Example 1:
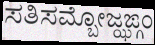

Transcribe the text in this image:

ಸತಿಸಮ್ಬೋಜ್ಝಙ್ಗಂ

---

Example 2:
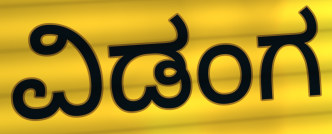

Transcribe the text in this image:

ವಿಡಂಗ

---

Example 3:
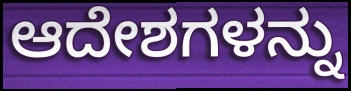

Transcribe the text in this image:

ಆದೇಶಗಳನ್ನು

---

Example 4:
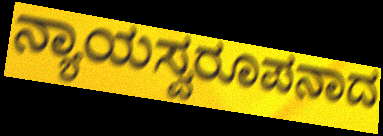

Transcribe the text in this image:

ನ್ಯಾಯಸ್ವರೂಪನಾದ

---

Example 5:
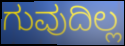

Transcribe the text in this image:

ಗುವುದಿಲ್ಲ